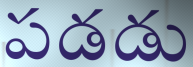
పడడు